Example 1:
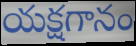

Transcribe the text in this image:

యక్షగానం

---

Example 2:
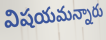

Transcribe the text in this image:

విషయమన్నారు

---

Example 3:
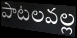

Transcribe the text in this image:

పాటలవల్ల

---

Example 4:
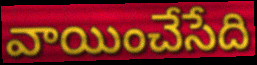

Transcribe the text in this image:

వాయించేసేది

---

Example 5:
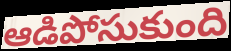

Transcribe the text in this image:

ఆడిపోసుకుంది